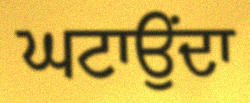
ਘਟਾਉੁਂਦਾ